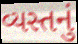
વ્યસ્તનું